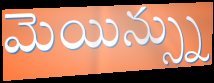
మెయిన్స్ను